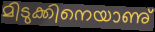
മിടുക്കിനെയാണു്